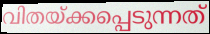
വിതയ്ക്കപ്പെടുന്നത്